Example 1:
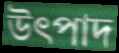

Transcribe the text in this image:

উৎপাদ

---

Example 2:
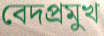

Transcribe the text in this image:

বেদপ্রমুখ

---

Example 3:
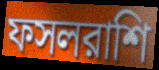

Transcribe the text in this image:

ফসলরাশি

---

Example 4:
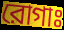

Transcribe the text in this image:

রোগাঃ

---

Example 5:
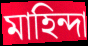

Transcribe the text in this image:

মাহিন্দা